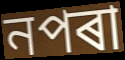
নপৰা